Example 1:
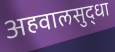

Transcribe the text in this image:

अहवालसुद्धा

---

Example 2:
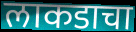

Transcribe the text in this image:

लाकडाचा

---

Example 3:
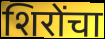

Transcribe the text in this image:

शिरोंचा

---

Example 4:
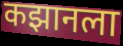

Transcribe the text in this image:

कझानला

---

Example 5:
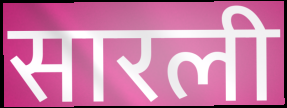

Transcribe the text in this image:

सारली